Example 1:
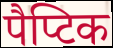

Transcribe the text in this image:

पैप्टिक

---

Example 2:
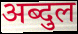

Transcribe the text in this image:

अब्दुल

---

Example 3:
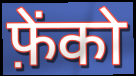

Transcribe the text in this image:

फ़ेंको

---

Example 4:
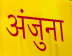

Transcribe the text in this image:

अंजुना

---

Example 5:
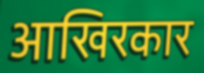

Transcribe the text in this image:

आखिरकार